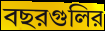
বছরগুলির